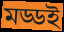
মড্ডই